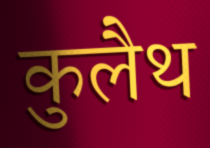
कुलैथ